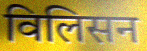
विलिसन